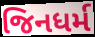
જિનધર્મ